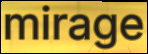
mirage